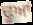
ਢੂਆਂ